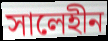
সালেহীন